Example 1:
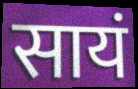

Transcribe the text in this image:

सायं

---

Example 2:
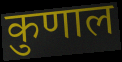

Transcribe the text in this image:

कुणाल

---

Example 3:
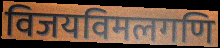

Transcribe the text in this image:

विजयविमलगणि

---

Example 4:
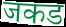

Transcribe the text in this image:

जकड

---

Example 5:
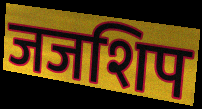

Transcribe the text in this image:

जजशिप